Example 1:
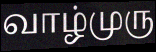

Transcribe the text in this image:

வாழ்முரு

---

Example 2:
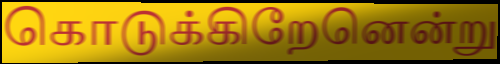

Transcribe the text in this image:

கொடுக்கிறேனென்று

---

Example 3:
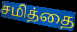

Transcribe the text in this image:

சமித்தை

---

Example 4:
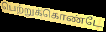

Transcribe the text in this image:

பெற்றுக்கொண்டே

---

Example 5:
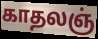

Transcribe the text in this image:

காதலஞ்